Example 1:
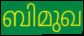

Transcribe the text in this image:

ബിമുഖ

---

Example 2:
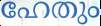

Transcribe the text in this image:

ഹേതും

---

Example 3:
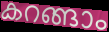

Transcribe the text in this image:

കറങ്ങാം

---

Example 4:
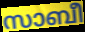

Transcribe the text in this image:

സാബീ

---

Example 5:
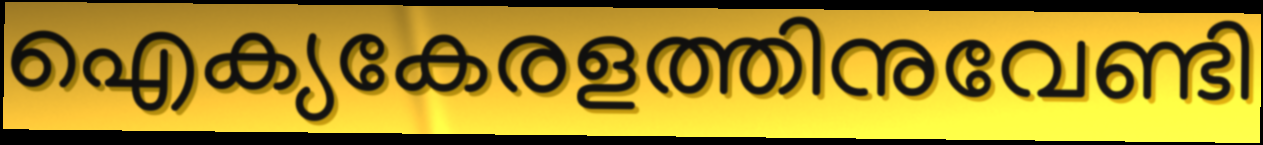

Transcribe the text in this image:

ഐക്യകേരളത്തിനുവേണ്ടി